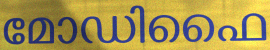
മോഡിഫൈ